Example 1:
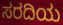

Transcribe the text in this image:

ಸರದಿಯ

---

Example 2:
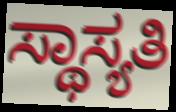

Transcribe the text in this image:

ಸ್ಥಾಸ್ಯತಿ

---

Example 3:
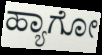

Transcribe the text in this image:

ಹ್ಯಾಗೋ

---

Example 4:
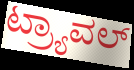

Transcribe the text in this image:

ಟ್ರ್ಯಾವಲ್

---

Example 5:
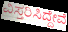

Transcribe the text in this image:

ವಿಸ್ತರಿಸಿದ್ದೇವೆ